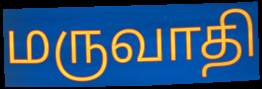
மருவாதி